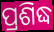
ପ୍ରଶିଦ୍ଧ